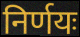
निर्णयः